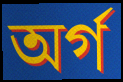
অৰ্গ